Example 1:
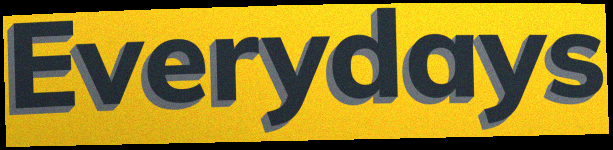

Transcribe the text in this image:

Everydays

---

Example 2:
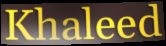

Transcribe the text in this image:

Khaleed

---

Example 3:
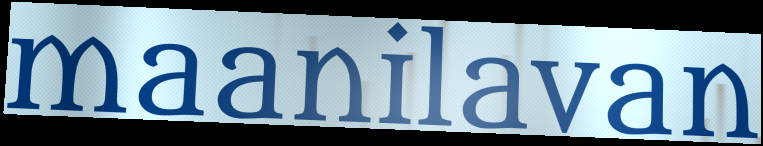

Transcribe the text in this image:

maanilavan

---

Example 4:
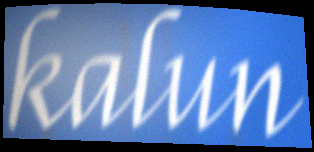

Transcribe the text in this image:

kalun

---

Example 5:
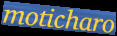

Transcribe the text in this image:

moticharo